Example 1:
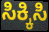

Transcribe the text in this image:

ಸಿಕ್ಕಿಸಿ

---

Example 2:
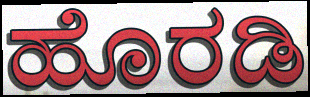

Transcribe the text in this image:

ಹೊರಡಿ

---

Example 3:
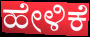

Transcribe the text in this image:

ಹೇಳಿಕೆ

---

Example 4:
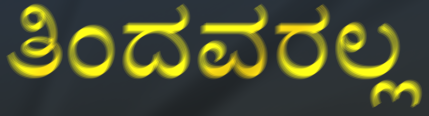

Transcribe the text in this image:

ತಿಂದವರಲ್ಲ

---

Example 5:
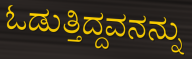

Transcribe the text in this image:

ಓಡುತ್ತಿದ್ದವನನ್ನು